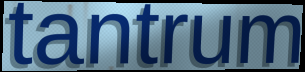
tantrum